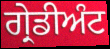
ਗ੍ਰੇਡੀਅੰਟ